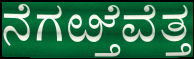
ನೆಗೞ್ತೆವೆತ್ತ